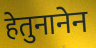
हेतुनानेन